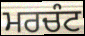
ਮਰਚੰਟ